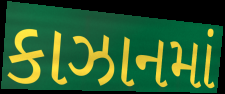
કાઝાનમાં